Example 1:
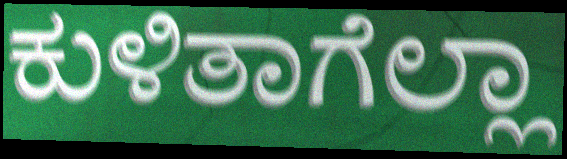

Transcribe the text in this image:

ಕುಳಿತಾಗೆಲ್ಲಾ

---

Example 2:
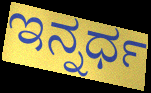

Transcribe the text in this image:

ಇನ್ನರ್ಧ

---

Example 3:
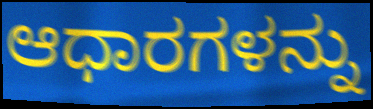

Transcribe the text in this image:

ಆಧಾರಗಳನ್ನು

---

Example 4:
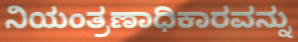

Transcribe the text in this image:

ನಿಯಂತ್ರಣಾಧಿಕಾರವನ್ನು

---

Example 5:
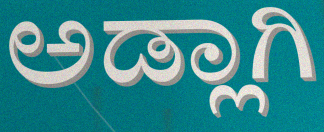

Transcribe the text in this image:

ಅಡ್ಲಾಗಿ